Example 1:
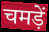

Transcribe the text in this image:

चमड़ें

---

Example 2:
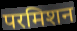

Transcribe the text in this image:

परमिशन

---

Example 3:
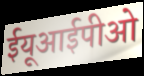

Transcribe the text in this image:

ईयूआईपीओ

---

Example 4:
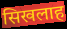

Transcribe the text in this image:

सिखलाह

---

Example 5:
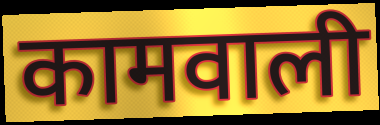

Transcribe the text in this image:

कामवाली